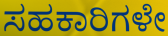
ಸಹಕಾರಿಗಳೇ